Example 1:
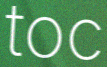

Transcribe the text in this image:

toc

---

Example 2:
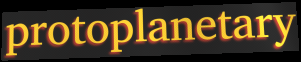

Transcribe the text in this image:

protoplanetary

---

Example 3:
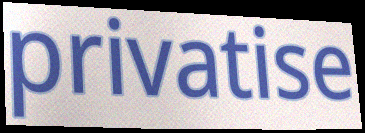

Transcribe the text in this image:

privatise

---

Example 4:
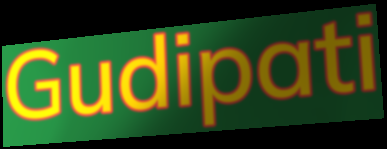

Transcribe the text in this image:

Gudipati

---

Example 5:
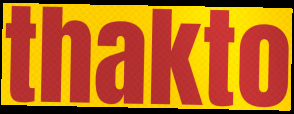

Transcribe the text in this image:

thakto